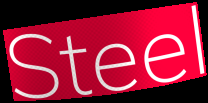
Steel